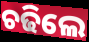
ଚଢିଲେ